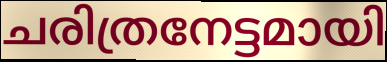
ചരിത്രനേട്ടമായി